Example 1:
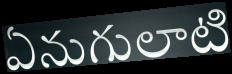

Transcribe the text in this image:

ఏనుగులాటి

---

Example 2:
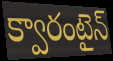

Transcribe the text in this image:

క్వారంటైన్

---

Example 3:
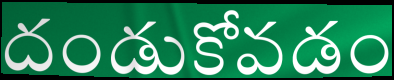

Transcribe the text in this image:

దండుకోవడం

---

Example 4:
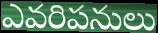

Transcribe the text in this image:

ఎవరిపనులు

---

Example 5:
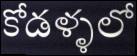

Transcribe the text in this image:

కోడళ్ళలో